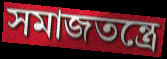
সমাজতন্ত্রে